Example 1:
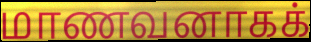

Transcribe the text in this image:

மாணவனாகக்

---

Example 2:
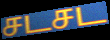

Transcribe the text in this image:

சடசட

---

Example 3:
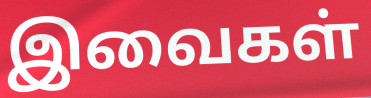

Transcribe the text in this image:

இவைகள்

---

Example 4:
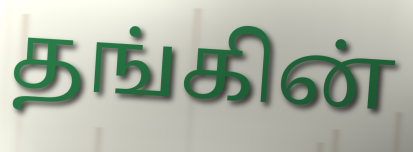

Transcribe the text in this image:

தங்கின்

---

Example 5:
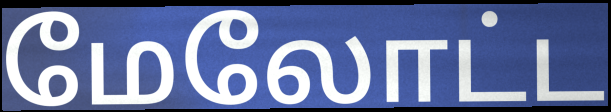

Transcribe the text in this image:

மேலோட்ட